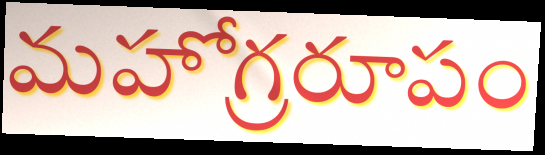
మహోగ్రరూపం